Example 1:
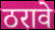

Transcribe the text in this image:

ठरावे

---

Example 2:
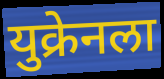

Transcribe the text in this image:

युक्रेनला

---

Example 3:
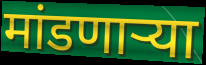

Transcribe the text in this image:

मांडणाऱ्या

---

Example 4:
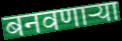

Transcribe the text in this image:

बनवणाऱ्या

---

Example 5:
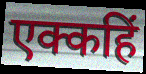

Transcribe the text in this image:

एक्कहिं